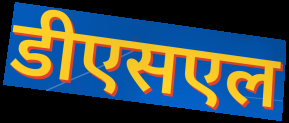
डीएसएल